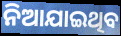
ନିଆଯାଇଥିବ